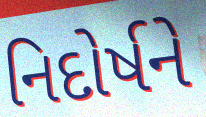
નિદોર્ષને